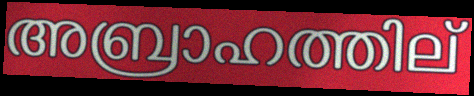
അബ്രാഹത്തില്